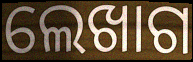
ଲେଖାଗ